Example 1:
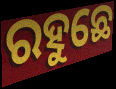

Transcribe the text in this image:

ରହୁଛେ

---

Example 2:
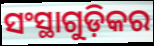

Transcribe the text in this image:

ସଂସ୍ଥାଗୁଡ଼ିକର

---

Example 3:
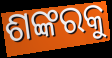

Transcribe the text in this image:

ଶଙ୍କରକୁ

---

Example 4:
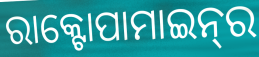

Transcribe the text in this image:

ରାକ୍ଟୋପାମାଇନ୍‌ର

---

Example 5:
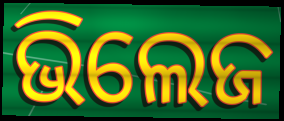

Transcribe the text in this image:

ଭିଲେଜ